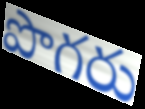
పొగరు